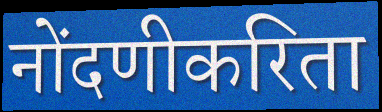
नोंदणीकरिता